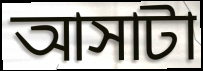
আসাটা